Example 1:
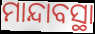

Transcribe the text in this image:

ମାନ୍ଦାବସ୍ଥା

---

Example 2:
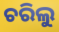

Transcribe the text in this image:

ଚରିଲୁ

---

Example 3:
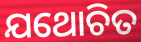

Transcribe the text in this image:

ଯଥୋଚିତ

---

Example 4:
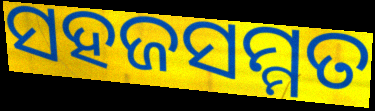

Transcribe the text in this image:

ସହଜସମ୍ମତ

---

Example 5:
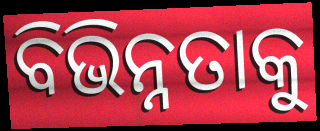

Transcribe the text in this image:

ବିଭିନ୍ନତାକୁ